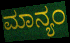
ಮಾನ್ಯಂ